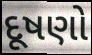
દૂષણો